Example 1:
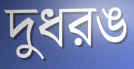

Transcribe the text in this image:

দুধরঙ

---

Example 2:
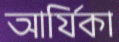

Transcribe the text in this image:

আর্যিকা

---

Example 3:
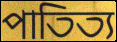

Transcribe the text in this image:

পাতিত্য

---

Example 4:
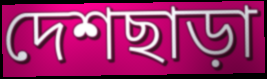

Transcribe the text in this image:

দেশছাড়া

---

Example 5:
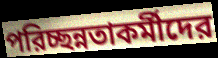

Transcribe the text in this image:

পরিচ্ছন্নতাকর্মীদের